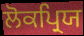
ਲੋਕਪ੍ਰਿਯ